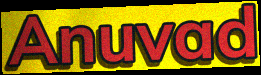
Anuvad